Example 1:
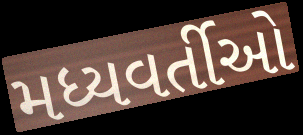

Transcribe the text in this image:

મધ્યવર્તીઓ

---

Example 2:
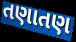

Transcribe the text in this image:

તણાતણ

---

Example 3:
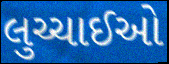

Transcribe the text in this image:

લુચ્ચાઈઓ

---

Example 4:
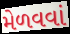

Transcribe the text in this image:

મેળવવાં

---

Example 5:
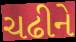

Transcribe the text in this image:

ચઢીને